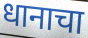
धानाचा